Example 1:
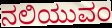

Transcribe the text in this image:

ನಲಿಯುವಂ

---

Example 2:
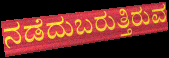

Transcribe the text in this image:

ನಡೆದುಬರುತ್ತಿರುವ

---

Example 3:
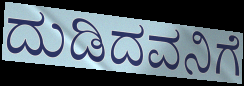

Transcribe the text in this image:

ದುಡಿದವನಿಗೆ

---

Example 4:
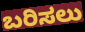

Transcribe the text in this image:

ಬರಿಸಲು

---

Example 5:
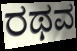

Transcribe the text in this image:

ರಥವ